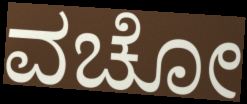
ವಚೋ